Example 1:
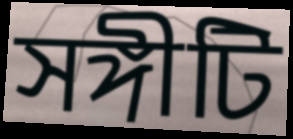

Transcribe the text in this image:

সঙ্গীটি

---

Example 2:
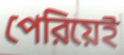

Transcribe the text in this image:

পেরিয়েই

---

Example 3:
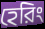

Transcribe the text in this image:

হেরিং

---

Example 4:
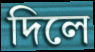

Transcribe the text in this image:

দিলে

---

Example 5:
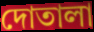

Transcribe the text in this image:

দোতালা